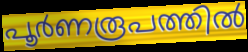
പൂർണരൂപത്തിൽ